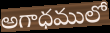
అగాధములో